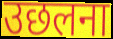
उछलना